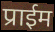
प्राईम